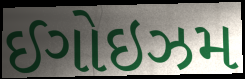
ઈગોઇઝમ